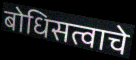
बोधिसत्वाचे